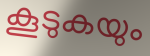
കൂടുകയും